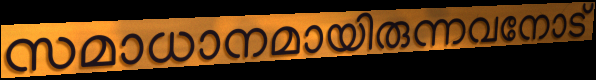
സമാധാനമായിരുന്നവനോട്